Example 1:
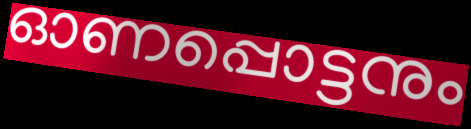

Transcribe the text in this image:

ഓണപ്പൊട്ടനും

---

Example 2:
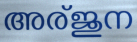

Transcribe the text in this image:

അര്ജുന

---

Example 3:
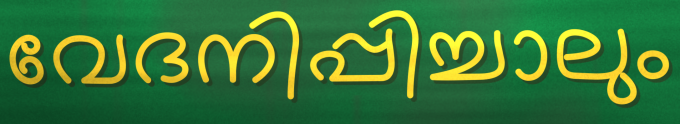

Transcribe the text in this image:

വേദനിപ്പിച്ചാലും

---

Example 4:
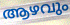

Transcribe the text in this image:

ആഴവും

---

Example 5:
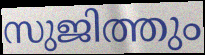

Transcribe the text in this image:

സുജിത്തും